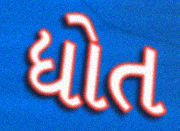
દ્યોત